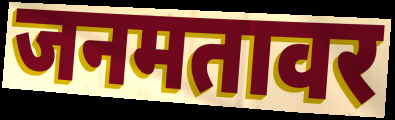
जनमतावर